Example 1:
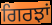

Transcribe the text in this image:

ਗਿਰਝਾਂ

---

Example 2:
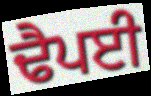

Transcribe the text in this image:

ਢੈਪਈ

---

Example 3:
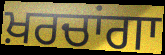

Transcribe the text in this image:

ਖ਼ਰਚਾਂਗਾ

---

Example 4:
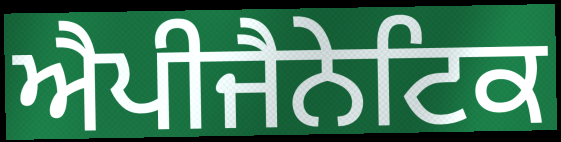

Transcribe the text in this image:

ਐਪੀਜੈਨੇਟਿਕ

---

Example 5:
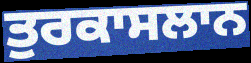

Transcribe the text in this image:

ਤੁਰਕਾਸਲਾਨ